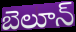
బెలూన్